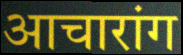
आचारांग